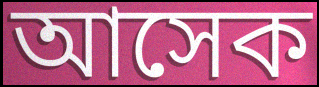
আসেক